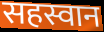
सहस्वान